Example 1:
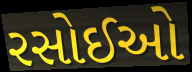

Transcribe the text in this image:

રસોઈઓ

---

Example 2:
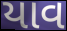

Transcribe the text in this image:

યાવ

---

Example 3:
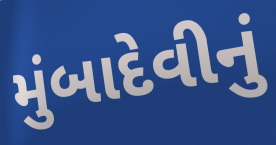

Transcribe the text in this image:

મુંબાદેવીનું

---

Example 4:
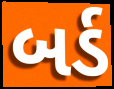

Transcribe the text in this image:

બર્ડ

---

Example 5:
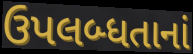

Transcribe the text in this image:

ઉપલબ્ધતાનાં